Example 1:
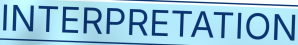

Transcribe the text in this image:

INTERPRETATION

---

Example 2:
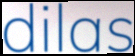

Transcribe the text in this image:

dilas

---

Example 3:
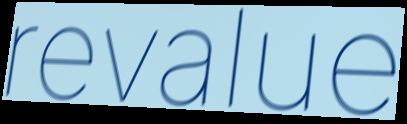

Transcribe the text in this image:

revalue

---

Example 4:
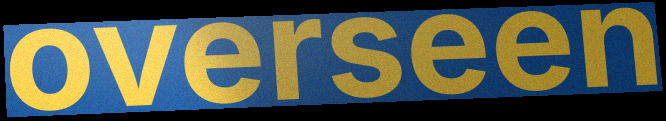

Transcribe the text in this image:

overseen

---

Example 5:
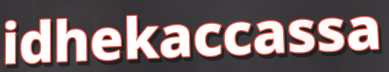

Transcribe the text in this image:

idhekaccassa